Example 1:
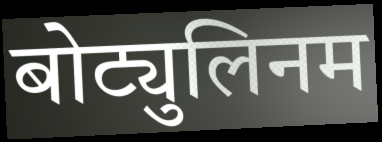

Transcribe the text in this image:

बोट्युलिनम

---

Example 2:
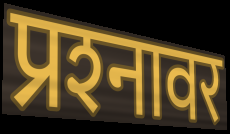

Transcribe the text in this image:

प्रश्‍नावर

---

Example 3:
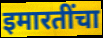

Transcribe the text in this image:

इमारतींचा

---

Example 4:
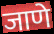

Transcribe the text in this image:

जाणे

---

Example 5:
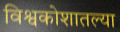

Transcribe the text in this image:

विश्वकोशातल्या